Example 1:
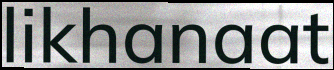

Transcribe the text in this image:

likhanaat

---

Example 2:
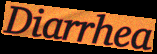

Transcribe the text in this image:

Diarrhea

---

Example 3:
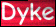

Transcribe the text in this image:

Dyke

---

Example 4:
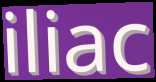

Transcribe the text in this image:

iliac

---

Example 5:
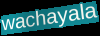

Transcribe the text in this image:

wachayala